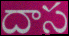
దాస